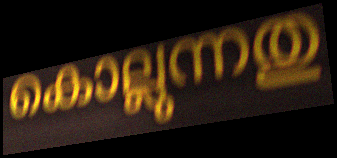
കൊല്ലുന്നതു